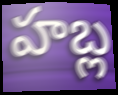
హబ్ల